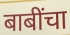
बाबींचा